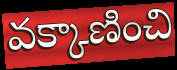
వక్కాణించి